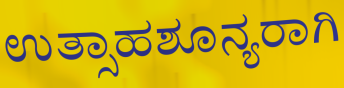
ಉತ್ಸಾಹಶೂನ್ಯರಾಗಿ